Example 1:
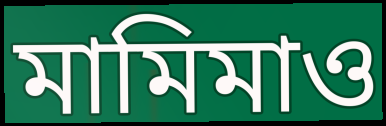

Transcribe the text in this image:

মামিমাও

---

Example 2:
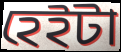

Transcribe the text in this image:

হেইটা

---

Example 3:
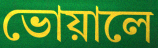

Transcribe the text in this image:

ভোয়ালে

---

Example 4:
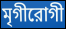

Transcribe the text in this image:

মৃগীরোগী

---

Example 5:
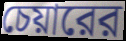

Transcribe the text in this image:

চেয়ারের